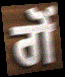
ਗੋਂ